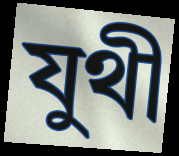
যুথী